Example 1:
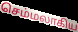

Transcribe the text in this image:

செம்மலாகிய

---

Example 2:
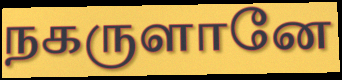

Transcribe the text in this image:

நகருளானே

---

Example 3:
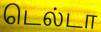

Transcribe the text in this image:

டெல்டா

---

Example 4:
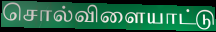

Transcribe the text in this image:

சொல்விளையாட்டு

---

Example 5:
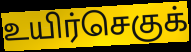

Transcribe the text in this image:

உயிர்செகுக்